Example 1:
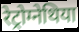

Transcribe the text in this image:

रेट्रोग्नेथिया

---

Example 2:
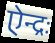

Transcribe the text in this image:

ऐन्द्रः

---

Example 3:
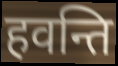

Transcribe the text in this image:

हवन्ति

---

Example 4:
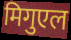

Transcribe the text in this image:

मिगुएल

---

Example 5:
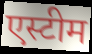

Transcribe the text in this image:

एस्टीम